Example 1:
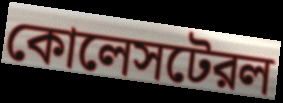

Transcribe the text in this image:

কোলেসটেরল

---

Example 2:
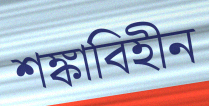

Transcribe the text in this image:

শঙ্কাবিহীন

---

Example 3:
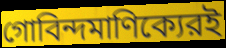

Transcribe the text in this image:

গোবিন্দমাণিক্যেরই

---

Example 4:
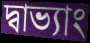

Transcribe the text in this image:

দ্বাভ্যাং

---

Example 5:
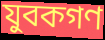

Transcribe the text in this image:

যুবকগণ